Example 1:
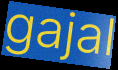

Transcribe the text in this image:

gajal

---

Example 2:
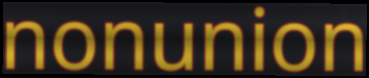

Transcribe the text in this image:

nonunion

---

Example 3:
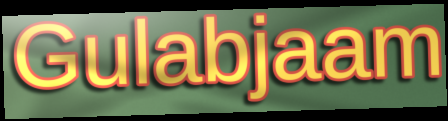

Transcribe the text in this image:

Gulabjaam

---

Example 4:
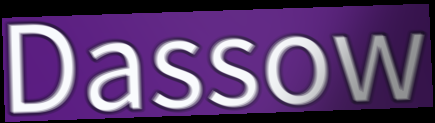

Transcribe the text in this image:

Dassow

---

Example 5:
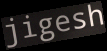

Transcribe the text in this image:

jigesh